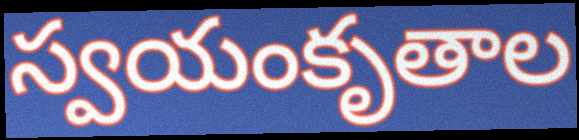
స్వయంకృతాల